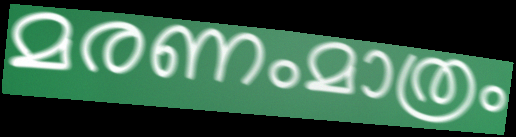
മരണംമാത്രം